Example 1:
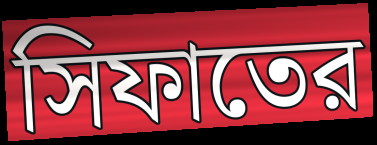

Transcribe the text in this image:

সিফাতের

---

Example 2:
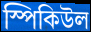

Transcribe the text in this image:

স্পিকিউল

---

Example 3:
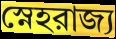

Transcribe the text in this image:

স্নেহরাজ্য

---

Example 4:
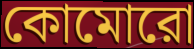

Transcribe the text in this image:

কোমোরো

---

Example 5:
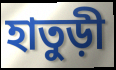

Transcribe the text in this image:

হাতুড়ী